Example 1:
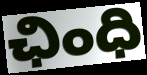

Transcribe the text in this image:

ఛింధి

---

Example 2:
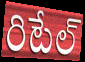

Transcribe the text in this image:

రిటేల్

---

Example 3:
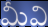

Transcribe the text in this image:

మీవి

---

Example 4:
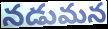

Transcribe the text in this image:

నడుమన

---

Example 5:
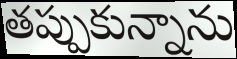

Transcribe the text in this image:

తప్పుకున్నాను